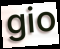
gio